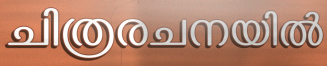
ചിത്രരചനയിൽ